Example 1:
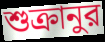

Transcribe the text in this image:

শুক্রানুর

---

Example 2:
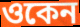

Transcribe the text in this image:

ওকেন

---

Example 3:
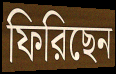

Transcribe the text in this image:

ফিরিছেন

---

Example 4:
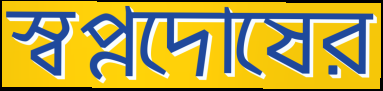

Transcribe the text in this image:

স্বপ্নদোষের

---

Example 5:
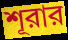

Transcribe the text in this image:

শূরার